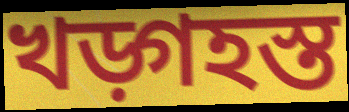
খড়্গহস্ত